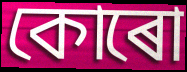
কোৰো